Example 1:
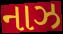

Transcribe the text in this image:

નાઝ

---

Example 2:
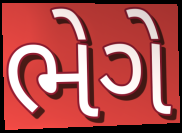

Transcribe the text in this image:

ભેગે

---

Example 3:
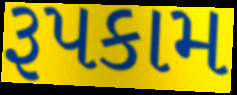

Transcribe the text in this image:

રૂપકામ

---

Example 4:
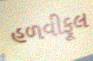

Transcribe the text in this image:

હળવીફૂલ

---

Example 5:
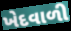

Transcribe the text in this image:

ખેદવાળી